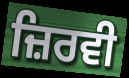
ਜ਼ਿਰਵੀ